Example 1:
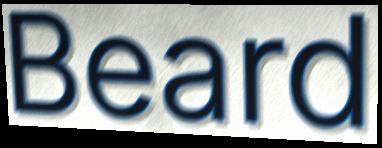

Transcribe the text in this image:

Beard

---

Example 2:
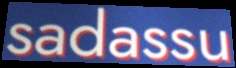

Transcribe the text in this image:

sadassu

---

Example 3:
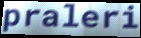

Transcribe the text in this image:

praleri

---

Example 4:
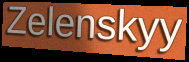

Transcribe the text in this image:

Zelenskyy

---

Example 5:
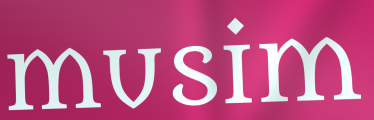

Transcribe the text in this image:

musim